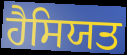
ਹੈਸਿਯਤ